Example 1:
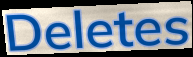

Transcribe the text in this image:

Deletes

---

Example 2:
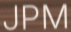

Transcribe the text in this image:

JPM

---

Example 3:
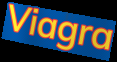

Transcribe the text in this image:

Viagra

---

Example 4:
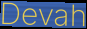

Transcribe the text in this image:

Devah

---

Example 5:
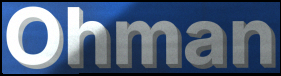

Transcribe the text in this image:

Ohman